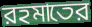
রহমাতের